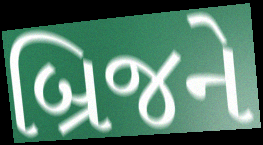
બ્રિજને